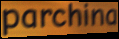
parchina